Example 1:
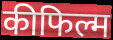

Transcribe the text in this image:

कीफिल्म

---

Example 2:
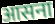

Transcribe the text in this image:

आसना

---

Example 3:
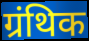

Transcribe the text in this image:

ग्रंथिक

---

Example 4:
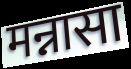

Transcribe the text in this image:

मन्नासा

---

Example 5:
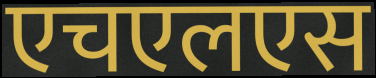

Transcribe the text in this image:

एचएलएस